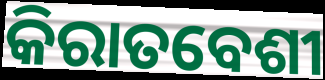
କିରାତବେଶୀ